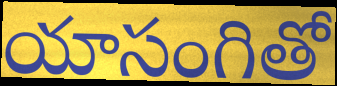
యాసంగితో